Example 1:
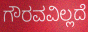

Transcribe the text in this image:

ಗೌರವವಿಲ್ಲದೆ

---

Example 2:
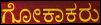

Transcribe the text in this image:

ಗೋಕಾಕರು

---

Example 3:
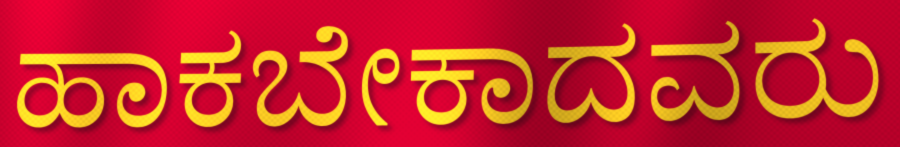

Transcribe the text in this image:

ಹಾಕಬೇಕಾದವರು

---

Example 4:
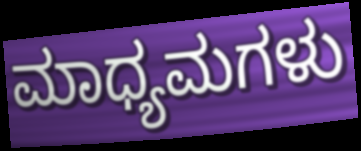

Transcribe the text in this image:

ಮಾಧ್ಯಮಗಳು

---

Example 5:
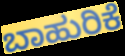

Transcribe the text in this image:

ಬಾಹುರಿಕೆ